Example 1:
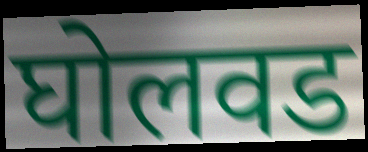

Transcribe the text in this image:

घोलवड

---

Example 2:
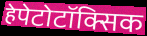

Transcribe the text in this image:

हेपेटोटॉक्सिक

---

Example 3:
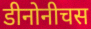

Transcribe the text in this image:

डीनोनीचस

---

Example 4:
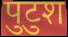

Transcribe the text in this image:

पुटुश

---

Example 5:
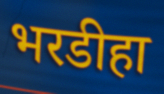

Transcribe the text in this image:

भरडीहा